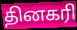
தினகரி